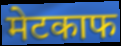
मेटकाफ